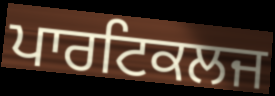
ਪਾਰਟਿਕਲਜ